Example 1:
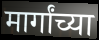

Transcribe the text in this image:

मार्गांच्या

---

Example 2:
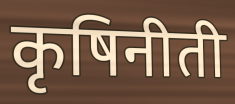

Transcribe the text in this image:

कृषिनीती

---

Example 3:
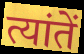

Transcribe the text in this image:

त्यांतें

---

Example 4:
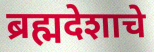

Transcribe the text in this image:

ब्रह्मदेशाचे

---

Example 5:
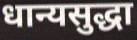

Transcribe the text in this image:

धान्यसुद्धा